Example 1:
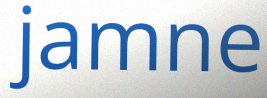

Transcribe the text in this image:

jamne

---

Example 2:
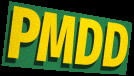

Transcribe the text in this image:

PMDD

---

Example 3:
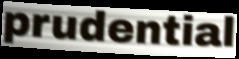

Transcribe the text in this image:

prudential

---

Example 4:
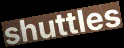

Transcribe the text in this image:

shuttles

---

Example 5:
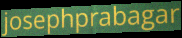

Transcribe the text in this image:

josephprabagar